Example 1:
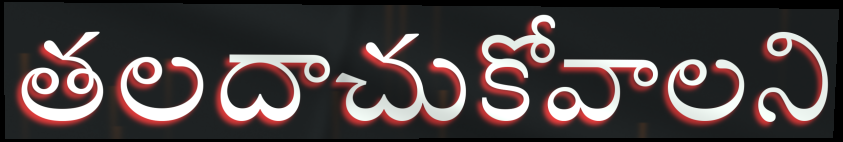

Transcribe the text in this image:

తలదాచుకోవాలని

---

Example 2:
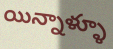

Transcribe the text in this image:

యిన్నాళ్ళూ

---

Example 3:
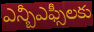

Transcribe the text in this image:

ఎన్బీఎఫ్సీలకు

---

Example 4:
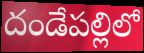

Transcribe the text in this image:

దండేపల్లిలో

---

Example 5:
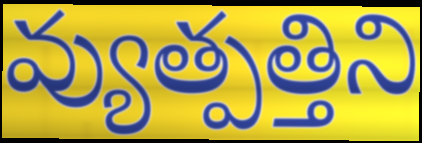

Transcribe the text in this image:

వ్యుత్పత్తిని